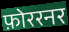
फ़ोररनर